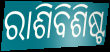
ରାଶିବିଶିଷ୍ଟ